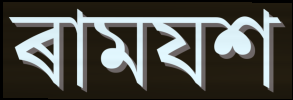
ৰামযশ